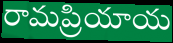
రామప్రియాయ